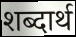
शब्दार्थ